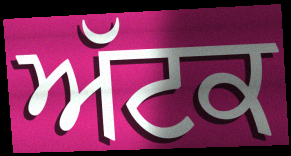
ਅੱਟਕ